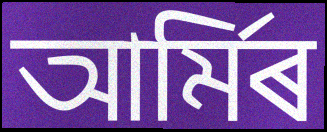
আৰ্মিৰ